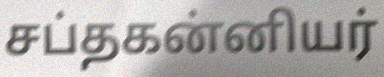
சப்தகன்னியர்